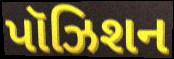
પૉઝિશન